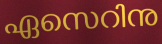
ഏസെറിനു